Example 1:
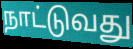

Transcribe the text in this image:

நாட்டுவது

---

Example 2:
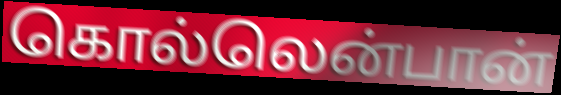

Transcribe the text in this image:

கொல்லென்பான்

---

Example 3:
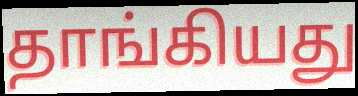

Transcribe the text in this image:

தாங்கியது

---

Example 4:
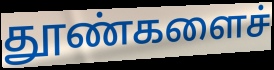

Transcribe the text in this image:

தூண்களைச்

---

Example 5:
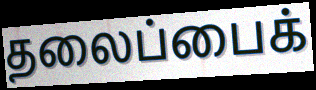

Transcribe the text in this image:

தலைப்பைக்